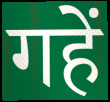
गहें